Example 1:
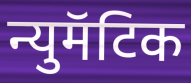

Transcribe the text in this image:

न्युमॅटिक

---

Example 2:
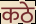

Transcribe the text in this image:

कठे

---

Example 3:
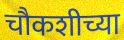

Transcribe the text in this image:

चौकशीच्या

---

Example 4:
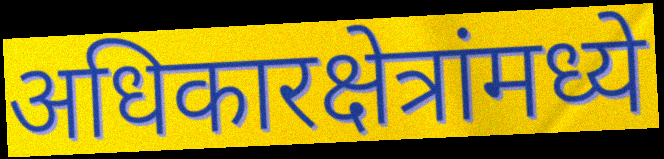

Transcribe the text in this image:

अधिकारक्षेत्रांमध्ये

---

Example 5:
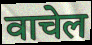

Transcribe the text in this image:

वाचेल